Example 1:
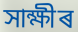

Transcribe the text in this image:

সাক্ষীৰ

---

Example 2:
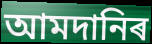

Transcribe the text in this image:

আমদানিৰ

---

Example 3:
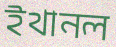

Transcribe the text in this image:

ইথানল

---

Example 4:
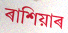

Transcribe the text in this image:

ৰাশিয়াৰ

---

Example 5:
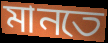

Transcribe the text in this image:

মানতে